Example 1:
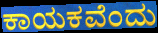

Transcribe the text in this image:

ಕಾಯಕವೆಂದು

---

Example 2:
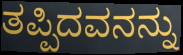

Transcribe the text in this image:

ತಪ್ಪಿದವನನ್ನು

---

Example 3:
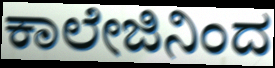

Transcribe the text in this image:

ಕಾಲೇಜಿನಿಂದ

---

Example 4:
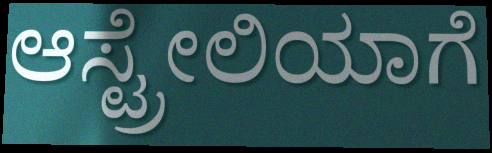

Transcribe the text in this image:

ಆಸ್ಟ್ರೇಲಿಯಾಗೆ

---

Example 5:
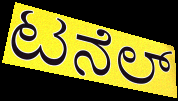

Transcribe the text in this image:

ಟನೆಲ್